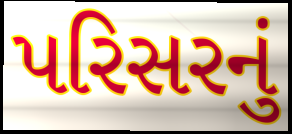
પરિસરનું